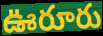
ఊరూరు